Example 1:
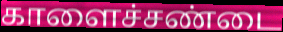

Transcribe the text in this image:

காளைச்சண்டை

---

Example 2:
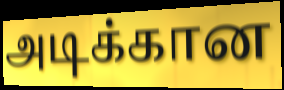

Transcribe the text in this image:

அடிக்கான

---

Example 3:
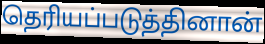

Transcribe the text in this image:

தெரியப்படுத்தினான்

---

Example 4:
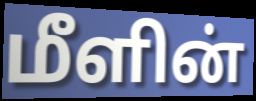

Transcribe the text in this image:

மீளின்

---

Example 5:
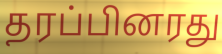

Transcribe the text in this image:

தரப்பினரது